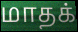
மாதக்